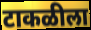
टाकळीला